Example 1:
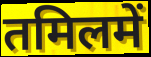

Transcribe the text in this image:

तमिलमें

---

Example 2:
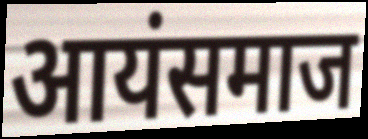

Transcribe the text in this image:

आयंसमाज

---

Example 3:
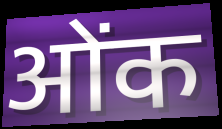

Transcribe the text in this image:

ओंक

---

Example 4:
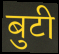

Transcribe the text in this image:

बुटी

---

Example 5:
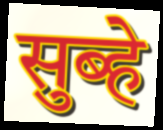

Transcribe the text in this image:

सुब्हे